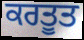
ਕਰਤੂਤ